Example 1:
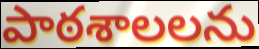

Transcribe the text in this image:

పాఠశాలలను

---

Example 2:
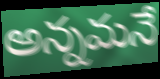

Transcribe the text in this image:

అన్నమనే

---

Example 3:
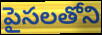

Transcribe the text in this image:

పైసలతోని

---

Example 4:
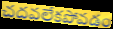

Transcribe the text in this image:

చదవలేకపోవడం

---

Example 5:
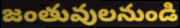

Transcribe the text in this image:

జంతువులనుండి